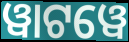
ୱାଟୱେ